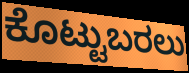
ಕೊಟ್ಟುಬರಲು